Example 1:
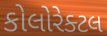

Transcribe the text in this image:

કોલોરેક્ટલ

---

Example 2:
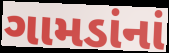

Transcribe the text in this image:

ગામડાંનાં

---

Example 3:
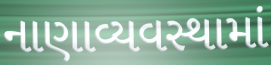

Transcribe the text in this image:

નાણાવ્યવસ્થામાં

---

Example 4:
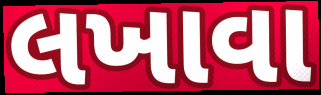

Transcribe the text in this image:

લખાવા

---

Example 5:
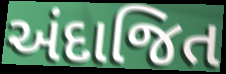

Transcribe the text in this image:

અંદાજિત